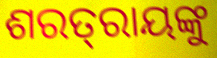
ଶରତ୍‌ରାୟଙ୍କୁ